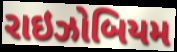
રાઇઝોબિયમ